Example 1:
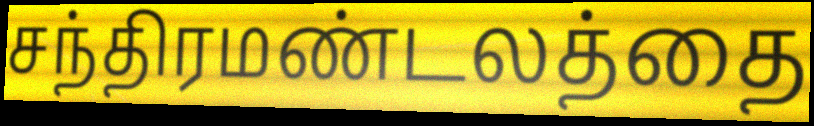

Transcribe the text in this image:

சந்திரமண்டலத்தை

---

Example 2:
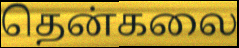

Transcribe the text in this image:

தென்கலை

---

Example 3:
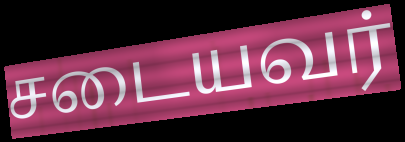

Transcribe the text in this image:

சடையவர்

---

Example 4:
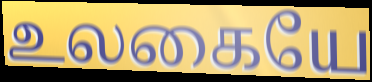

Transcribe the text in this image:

உலகையே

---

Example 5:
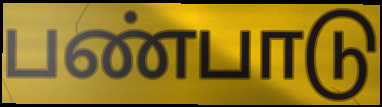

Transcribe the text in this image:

பண்பாடு